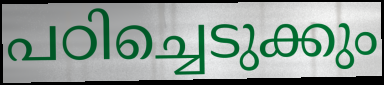
പഠിച്ചെടുക്കും